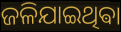
ଜଳିଯାଇଥିଵା